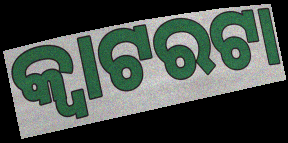
କ୍ଵାଟରଟା